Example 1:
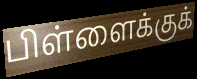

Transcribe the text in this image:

பிள்ளைக்குக்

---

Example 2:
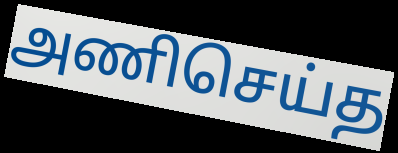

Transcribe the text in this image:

அணிசெய்த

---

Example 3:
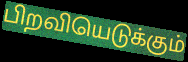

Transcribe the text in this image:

பிறவியெடுக்கும்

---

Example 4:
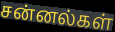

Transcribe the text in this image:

சன்னல்கள்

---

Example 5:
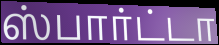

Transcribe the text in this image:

ஸ்பார்ட்டா